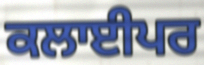
ਕਲਾਈਪਰ